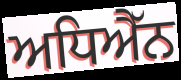
ਅਧਿਐੱਨ